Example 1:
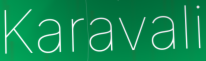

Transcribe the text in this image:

Karavali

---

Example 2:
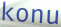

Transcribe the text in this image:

konu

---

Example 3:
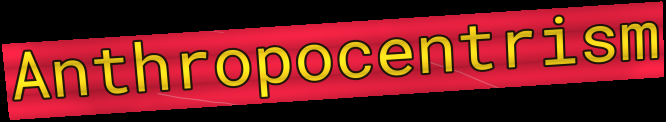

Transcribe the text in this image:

Anthropocentrism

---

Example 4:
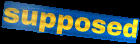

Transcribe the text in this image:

supposed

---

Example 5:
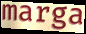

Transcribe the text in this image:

marga